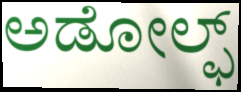
ಅಡೋಲ್ಫ್